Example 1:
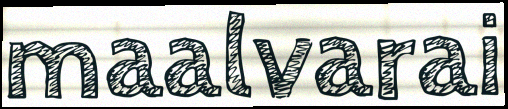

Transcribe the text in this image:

maalvarai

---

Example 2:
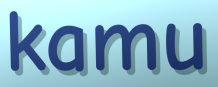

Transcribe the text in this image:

kamu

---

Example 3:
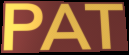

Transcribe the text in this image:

PAT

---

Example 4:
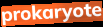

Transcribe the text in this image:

prokaryote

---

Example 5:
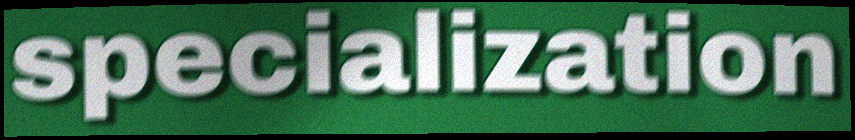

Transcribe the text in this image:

specialization